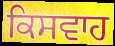
ਕਿਸਵਾਹ